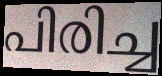
പിരിച്ച